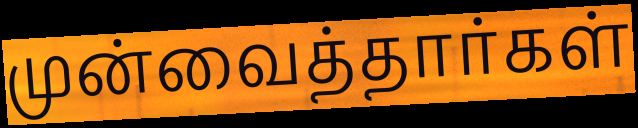
முன்வைத்தார்கள்